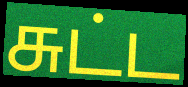
சுட்ட